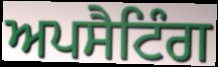
ਅਪਸੈਟਿੰਗ